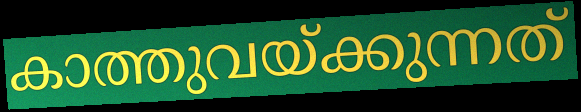
കാത്തുവയ്ക്കുന്നത്